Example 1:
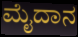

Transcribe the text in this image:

ಮೈದಾನ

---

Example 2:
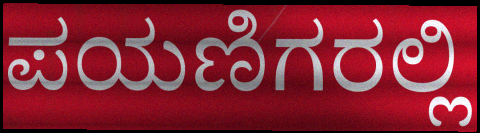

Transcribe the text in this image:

ಪಯಣಿಗರಲ್ಲಿ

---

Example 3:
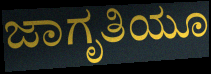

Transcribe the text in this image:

ಜಾಗೃತಿಯೂ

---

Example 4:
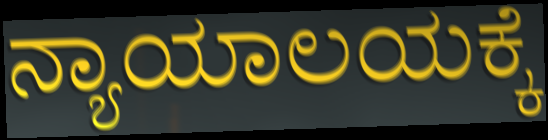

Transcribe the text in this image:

ನ್ಯಾಯಾಲಯಕ್ಕೆ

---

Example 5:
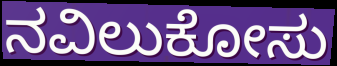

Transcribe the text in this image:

ನವಿಲುಕೋಸು